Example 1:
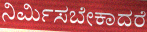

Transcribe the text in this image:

ನಿರ್ಮಿಸಬೇಕಾದರೆ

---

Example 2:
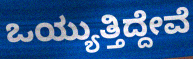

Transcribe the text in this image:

ಒಯ್ಯುತ್ತಿದ್ದೇವೆ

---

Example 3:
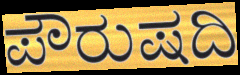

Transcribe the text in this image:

ಪೌರುಷದಿ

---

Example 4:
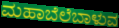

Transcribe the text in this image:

ಮಹಾಬೆಲೆಬಾಳುವ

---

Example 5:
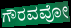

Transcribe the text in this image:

ಗೌರವವೋ